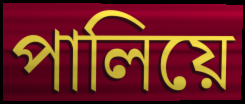
পালিয়ে